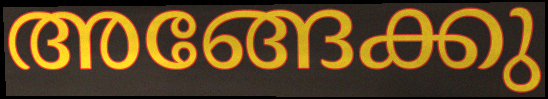
അങ്ങേക്കു